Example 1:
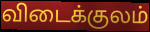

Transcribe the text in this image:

விடைக்குலம்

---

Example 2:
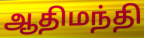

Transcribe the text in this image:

ஆதிமந்தி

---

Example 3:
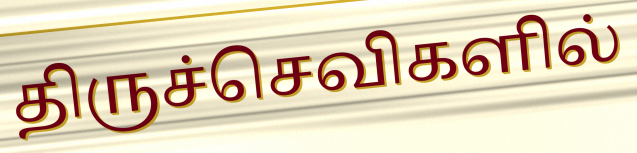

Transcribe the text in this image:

திருச்செவிகளில்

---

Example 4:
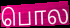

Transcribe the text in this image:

பொல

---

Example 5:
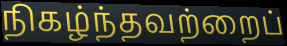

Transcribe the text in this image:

நிகழ்ந்தவற்றைப்